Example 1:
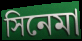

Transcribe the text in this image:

সিনেমা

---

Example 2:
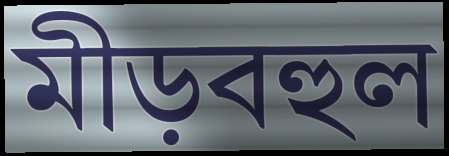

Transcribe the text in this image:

মীড়বহুল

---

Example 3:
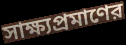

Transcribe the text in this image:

সাক্ষ্যপ্রমাণের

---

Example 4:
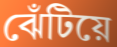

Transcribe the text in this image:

ঝেঁটিয়ে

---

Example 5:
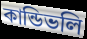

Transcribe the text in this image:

কান্ডিভলি